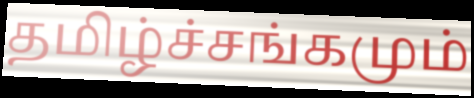
தமிழ்ச்சங்கமும்